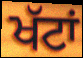
ਖੱਟਾਂ